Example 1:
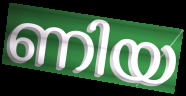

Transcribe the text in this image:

ണിയ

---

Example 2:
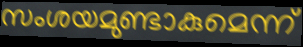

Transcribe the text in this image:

സംശയമുണ്ടാകുമെന്ന്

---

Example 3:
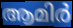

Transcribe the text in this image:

ആമിർ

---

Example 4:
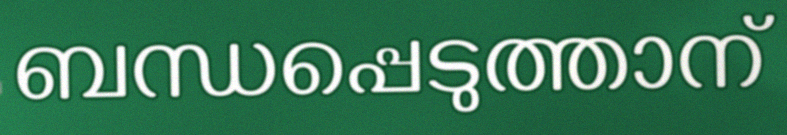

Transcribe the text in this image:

ബന്ധപ്പെടുത്താന്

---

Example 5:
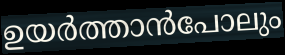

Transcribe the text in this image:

ഉയർത്താൻപോലും